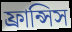
ফ্রান্সিস